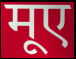
मूए